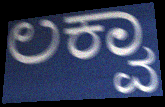
ಲಕ್ವಾ